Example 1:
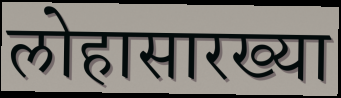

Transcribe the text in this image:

लोहासारख्या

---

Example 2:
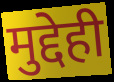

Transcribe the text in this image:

मुद्देही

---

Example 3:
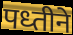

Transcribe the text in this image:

पध्तीने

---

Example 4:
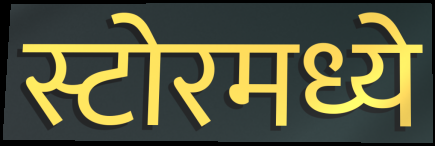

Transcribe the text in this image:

स्टोरमध्ये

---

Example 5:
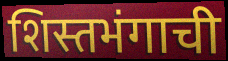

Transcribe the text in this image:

शिस्तभंगाची